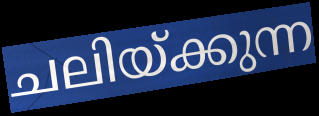
ചലിയ്ക്കുന്ന